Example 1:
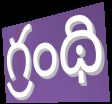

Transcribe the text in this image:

గ్రంథి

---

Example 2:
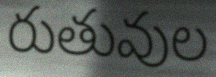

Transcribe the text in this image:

రుతువుల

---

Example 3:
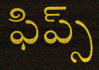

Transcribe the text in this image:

ఫిప్స్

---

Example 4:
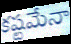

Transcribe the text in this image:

కష్టమేనా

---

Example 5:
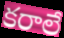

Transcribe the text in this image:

కరాలే